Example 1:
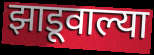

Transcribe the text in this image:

झाडूवाल्या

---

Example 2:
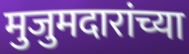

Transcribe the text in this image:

मुजुमदारांच्या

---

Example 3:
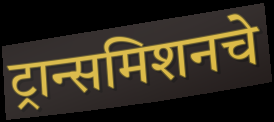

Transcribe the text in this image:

ट्रान्समिशनचे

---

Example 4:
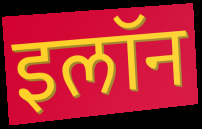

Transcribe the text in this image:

इलॉन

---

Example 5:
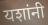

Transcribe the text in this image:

यशांनी